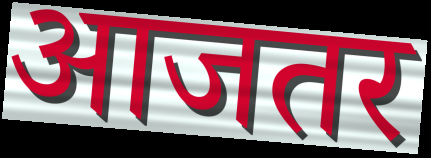
आजतर